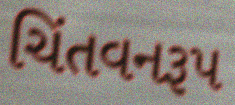
ચિંતવનરૂપ